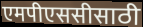
एमपीएससीसाठी